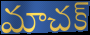
మాచక్